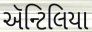
ઍન્ટિલિયા